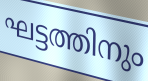
ഘട്ടത്തിനും